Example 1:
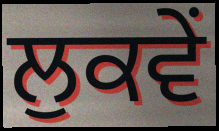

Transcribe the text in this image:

ਲੁਕਵੇਂ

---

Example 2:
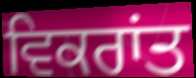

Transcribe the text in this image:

ਵਿਕਰਾਂਤ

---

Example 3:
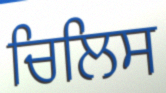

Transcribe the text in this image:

ਚਿਲਿਸ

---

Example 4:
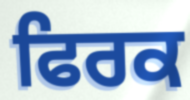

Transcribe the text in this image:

ਫਿਰਕ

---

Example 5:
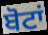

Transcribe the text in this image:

ਬੋਟਾਂ